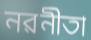
নৱনীতা